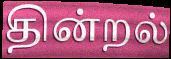
தின்றல்